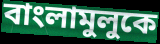
বাংলামুলুকে